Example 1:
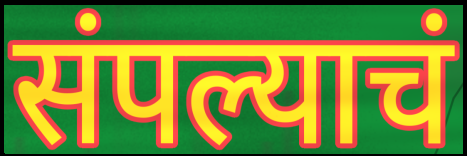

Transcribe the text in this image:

संपल्याचं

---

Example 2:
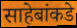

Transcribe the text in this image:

साहेबांकडे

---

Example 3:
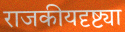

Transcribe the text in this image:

राजकीयदृष्ट्या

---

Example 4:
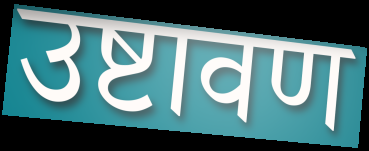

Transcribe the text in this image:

उष्टावण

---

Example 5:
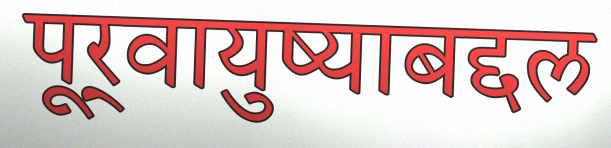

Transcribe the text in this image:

पूर्वायुष्याबद्दल